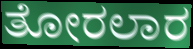
ತೋರಲಾರ